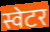
स्वेटर